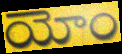
యోం